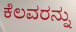
ಕೆಲವರನ್ನು